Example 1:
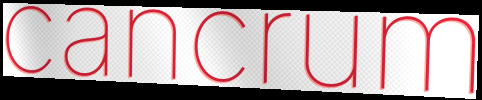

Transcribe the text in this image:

cancrum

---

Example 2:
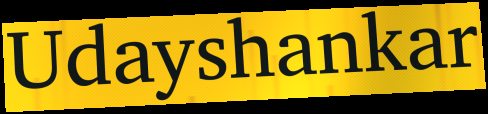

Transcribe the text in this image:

Udayshankar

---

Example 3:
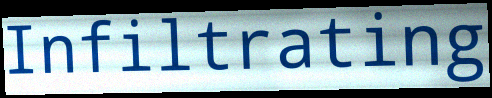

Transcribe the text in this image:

Infiltrating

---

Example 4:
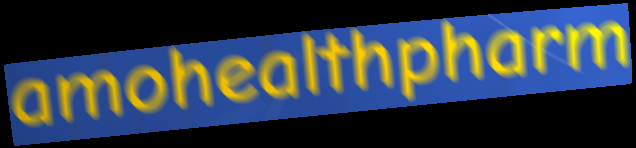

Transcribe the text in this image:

amohealthpharm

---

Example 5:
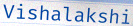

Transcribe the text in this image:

Vishalakshi